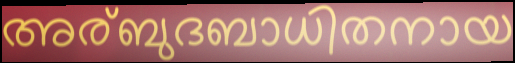
അര്ബുദബാധിതനായ